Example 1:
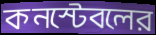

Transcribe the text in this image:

কনস্টেবলের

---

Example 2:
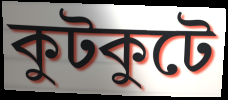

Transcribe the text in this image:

কুটকুটে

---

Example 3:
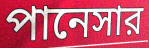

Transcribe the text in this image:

পানেসার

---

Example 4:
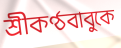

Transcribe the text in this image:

শ্রীকণ্ঠবাবুকে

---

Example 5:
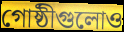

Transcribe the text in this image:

গোষ্ঠীগুলোও